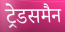
ट्रेडसमैन